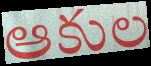
ఆకుల